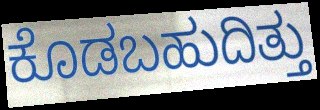
ಕೊಡಬಹುದಿತ್ತು